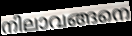
നിലാവങ്ങനെ